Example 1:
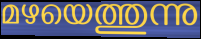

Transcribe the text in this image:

മഴയെത്തുന്നു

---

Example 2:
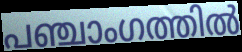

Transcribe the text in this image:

പഞ്ചാംഗത്തിൽ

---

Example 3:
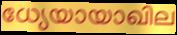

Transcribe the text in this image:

ധ്യേയായാഖില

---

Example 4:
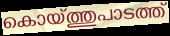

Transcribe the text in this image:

കൊയ്ത്തുപാടത്ത്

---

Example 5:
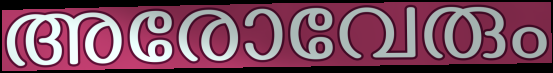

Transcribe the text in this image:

അരോവേരും